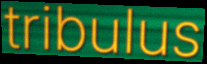
tribulus